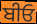
ਬੀਓ